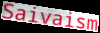
Saivaism